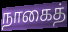
நாகைத்